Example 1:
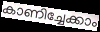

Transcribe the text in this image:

കാണിച്ചേക്കാം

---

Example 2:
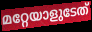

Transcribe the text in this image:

മറ്റേയാളുടേത്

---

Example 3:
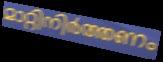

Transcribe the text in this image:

മാറ്റിനിർത്തണം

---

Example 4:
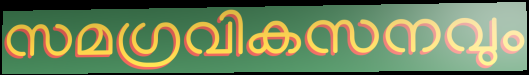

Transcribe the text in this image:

സമഗ്രവികസനവും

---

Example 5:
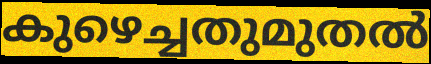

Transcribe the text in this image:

കുഴെച്ചതുമുതൽ